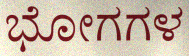
ಭೋಗಗಳ